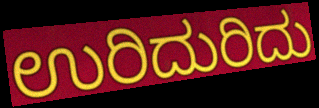
ಉರಿದುರಿದು